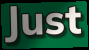
Just